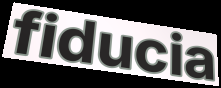
fiducia